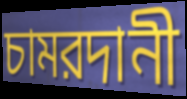
চামরদানী